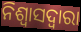
ନିଶ୍ୱାସଦ୍ୱାରା